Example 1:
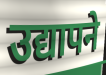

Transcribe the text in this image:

उद्यापने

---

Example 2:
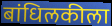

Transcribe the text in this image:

बांधिलकीला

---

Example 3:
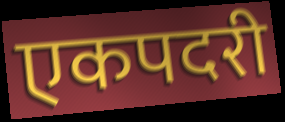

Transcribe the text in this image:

एकपदरी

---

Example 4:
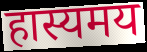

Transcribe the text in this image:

हास्यमय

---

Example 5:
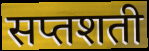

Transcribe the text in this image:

सप्तशती